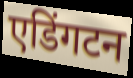
एडिंगटन